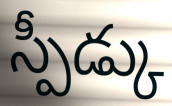
స్పీడ్కు